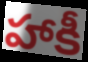
హాకీ